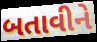
બતાવીને